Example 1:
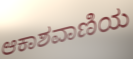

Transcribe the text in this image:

ಆಕಾಶವಾಣಿಯ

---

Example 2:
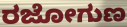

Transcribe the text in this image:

ರಜೋಗುಣ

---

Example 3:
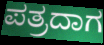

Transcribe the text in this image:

ಪತ್ರದಾಗ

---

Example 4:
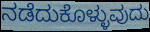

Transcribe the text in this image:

ನಡೆದುಕೊಳ್ಳುವುದು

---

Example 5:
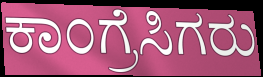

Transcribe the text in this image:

ಕಾಂಗ್ರೆಸಿಗರು